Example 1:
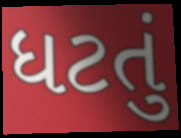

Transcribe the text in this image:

ધટતું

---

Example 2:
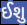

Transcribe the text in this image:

ઈશુ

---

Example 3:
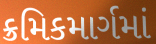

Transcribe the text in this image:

ક્રમિકમાર્ગમાં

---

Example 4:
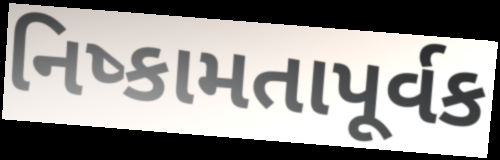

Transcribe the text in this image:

નિષ્કામતાપૂર્વક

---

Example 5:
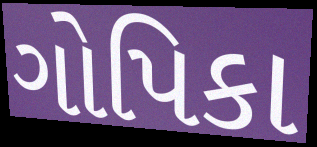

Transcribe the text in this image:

ગોપિકા